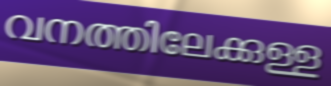
വനത്തിലേക്കുള്ള